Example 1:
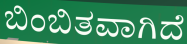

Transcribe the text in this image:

ಬಿಂಬಿತವಾಗಿದೆ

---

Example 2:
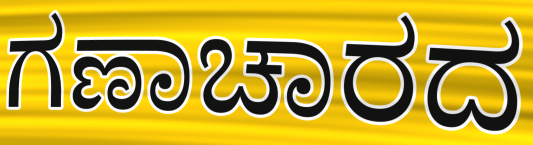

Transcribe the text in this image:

ಗಣಾಚಾರದ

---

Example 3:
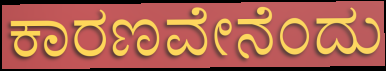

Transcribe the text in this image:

ಕಾರಣವೇನೆಂದು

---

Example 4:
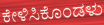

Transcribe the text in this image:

ಕೇಳಿಸಿಕೊಂಡಳು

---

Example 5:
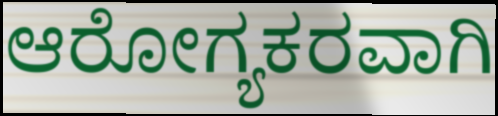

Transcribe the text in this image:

ಆರೋಗ್ಯಕರವಾಗಿ